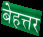
बेहत्तर